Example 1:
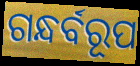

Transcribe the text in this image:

ଗନ୍ଧର୍ବରୂପ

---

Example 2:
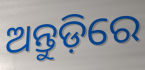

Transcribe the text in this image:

ଅନ୍ତୁଡ଼ିରେ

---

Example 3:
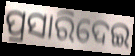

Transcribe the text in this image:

ପ୍ରସାରିଦେଇ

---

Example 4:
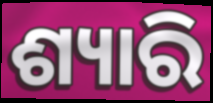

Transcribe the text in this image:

ଶ୍ୟାରି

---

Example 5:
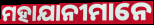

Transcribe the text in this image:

ମହାଯାନୀମାନେ